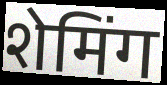
शेमिंग